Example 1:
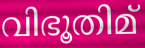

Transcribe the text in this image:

വിഭൂതിമ്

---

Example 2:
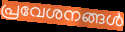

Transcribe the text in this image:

പ്രവേശനങ്ങൾ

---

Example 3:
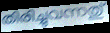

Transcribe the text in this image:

തിരിച്ചുവന്നതു്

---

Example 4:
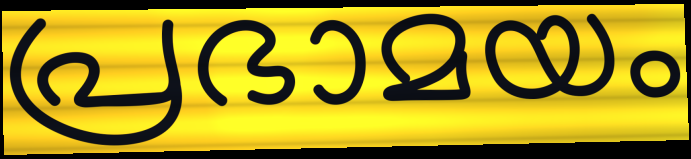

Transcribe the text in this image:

പ്രഭാമയം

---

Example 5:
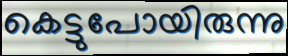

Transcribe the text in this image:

കെട്ടുപോയിരുന്നു